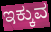
ಇಕ್ಕುವ